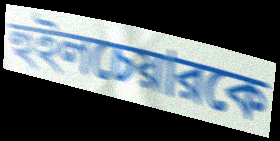
হুইলচেয়ারকে